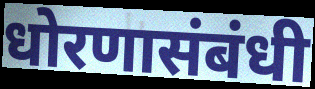
धोरणासंबंधी